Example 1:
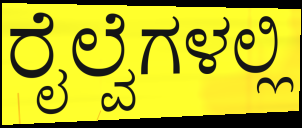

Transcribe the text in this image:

ರೈಲ್ವೆಗಳಲ್ಲಿ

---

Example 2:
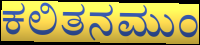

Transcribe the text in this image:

ಕಲಿತನಮುಂ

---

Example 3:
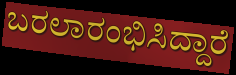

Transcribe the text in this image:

ಬರಲಾರಂಭಿಸಿದ್ದಾರೆ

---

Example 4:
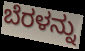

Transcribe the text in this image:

ಬೆರಳನ್ನು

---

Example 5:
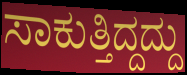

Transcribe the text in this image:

ಸಾಕುತ್ತಿದ್ದದ್ದು